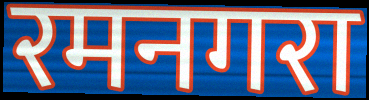
रमनगरा